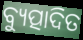
ବ୍ୟୁତ୍ପାଦିତ